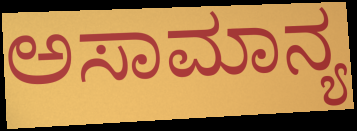
ಅಸಾಮಾನ್ಯ